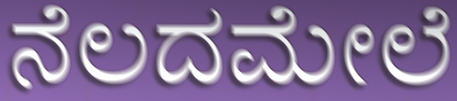
ನೆಲದಮೇಲೆ